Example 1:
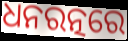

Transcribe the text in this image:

ଧନରତ୍ନରେ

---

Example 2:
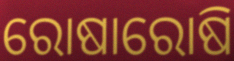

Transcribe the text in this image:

ରୋଷାରୋଷି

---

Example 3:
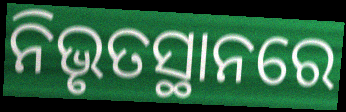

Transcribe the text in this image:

ନିଭୃତସ୍ଥାନରେ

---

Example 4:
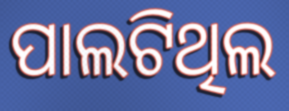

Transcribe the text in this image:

ପାଲଟିଥିଲ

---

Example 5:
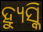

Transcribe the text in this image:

ହ୍ୟୁସ୍କି